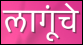
लागूंचे